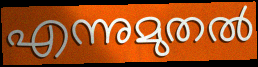
എന്നുമുതൽ